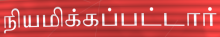
நியமிக்கப்பட்டார்